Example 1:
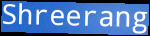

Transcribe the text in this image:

Shreerang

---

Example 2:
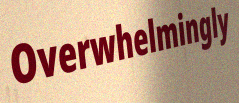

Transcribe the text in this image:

Overwhelmingly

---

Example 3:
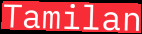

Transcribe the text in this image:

Tamilan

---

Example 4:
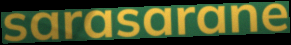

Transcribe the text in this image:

sarasarane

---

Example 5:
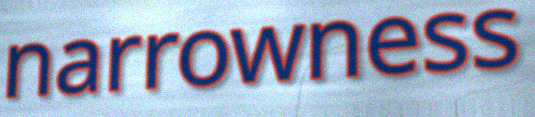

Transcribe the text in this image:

narrowness